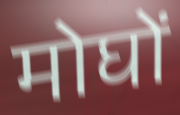
मोघों